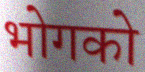
भोगको